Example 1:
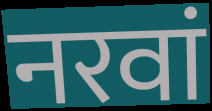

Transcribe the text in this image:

नरवां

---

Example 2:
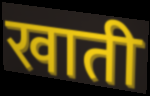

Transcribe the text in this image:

खाती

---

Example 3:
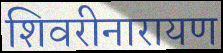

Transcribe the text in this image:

शिवरीनारायण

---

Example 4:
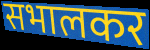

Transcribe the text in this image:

सभालकर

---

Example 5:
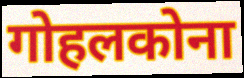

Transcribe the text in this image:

गोहलकोना